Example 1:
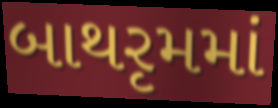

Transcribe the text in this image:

બાથરૃમમાં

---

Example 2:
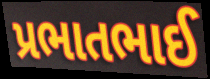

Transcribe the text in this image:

પ્રભાતભાઈ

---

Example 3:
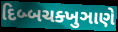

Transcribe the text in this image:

દિબ્બચક્ખુઞાણે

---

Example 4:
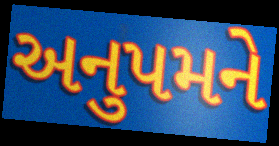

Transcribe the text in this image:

અનુપમને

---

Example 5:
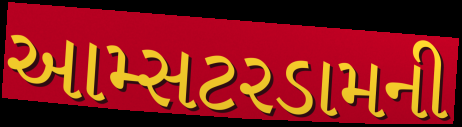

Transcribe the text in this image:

આમ્સટરડામની